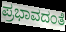
ಪ್ರಭಾವದಂತೆ